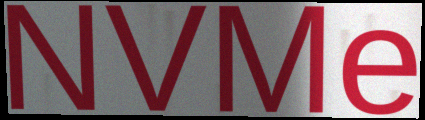
NVMe